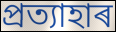
প্ৰত্যাহাৰ